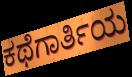
ಕಥೆಗಾರ್ತಿಯ